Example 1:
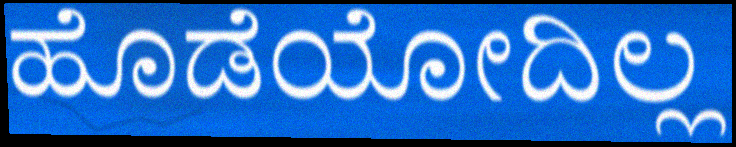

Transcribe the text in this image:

ಹೊಡೆಯೋದಿಲ್ಲ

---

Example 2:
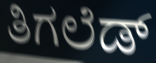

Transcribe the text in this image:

ತಿಗಲೆಡ್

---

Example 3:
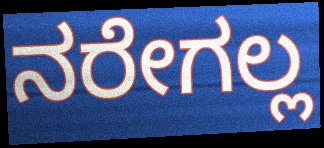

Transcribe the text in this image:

ನರೇಗಲ್ಲ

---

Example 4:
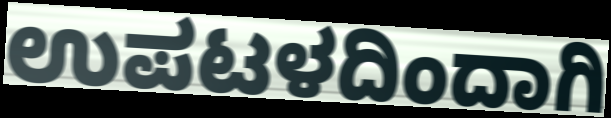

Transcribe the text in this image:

ಉಪಟಳದಿಂದಾಗಿ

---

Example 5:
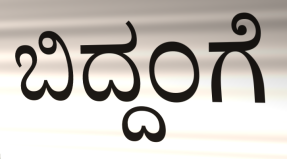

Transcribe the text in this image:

ಬಿದ್ದಂಗೆ